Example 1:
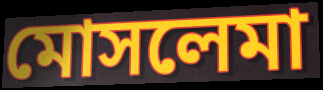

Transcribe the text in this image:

মোসলেমা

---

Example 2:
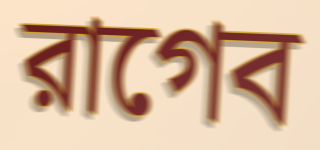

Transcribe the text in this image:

রাগেব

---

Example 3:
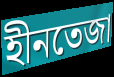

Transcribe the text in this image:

হীনতেজা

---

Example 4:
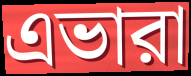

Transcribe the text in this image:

এভারা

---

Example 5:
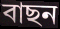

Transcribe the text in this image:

বাছন